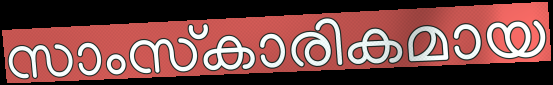
സാംസ്‌കാരികമായ